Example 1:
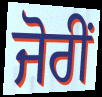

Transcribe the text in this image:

ਜੋਰੀਂ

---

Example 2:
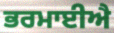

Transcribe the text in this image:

ਭਰਮਾਈਐ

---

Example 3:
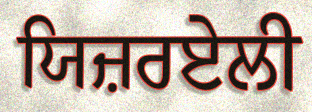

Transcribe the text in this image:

ਯਿਜ਼ਰਏਲੀ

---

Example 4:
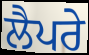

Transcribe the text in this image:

ਲੈਪਰੇ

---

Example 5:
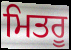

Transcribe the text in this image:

ਮਿਤਰੂ